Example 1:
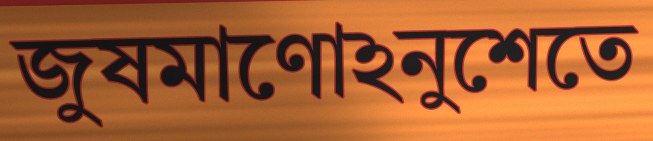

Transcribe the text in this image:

জুষমাণোঽনুশেতে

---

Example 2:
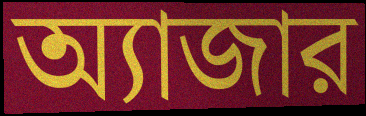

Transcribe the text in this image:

অ্যাজার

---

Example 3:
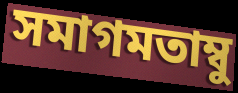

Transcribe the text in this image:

সমাগমতাম্বু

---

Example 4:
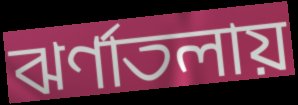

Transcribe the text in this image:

ঝর্ণাতলায়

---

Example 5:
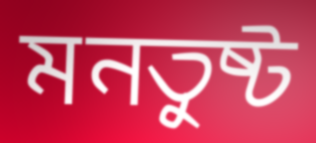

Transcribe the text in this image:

মনতুষ্ট